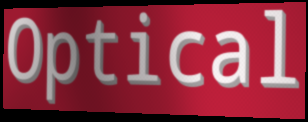
Optical